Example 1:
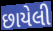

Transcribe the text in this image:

છાયેલી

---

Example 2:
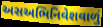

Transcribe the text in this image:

અસઅભિનિવેશવાળું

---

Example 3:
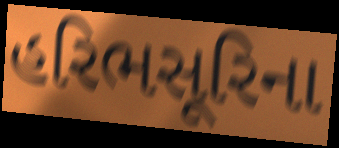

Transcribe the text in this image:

હરિભસૂરિના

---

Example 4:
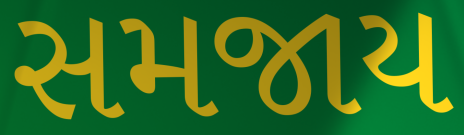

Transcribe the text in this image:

સમજાય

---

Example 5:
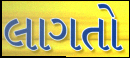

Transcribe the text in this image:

લાગતો